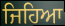
ਜਿਹਿਆ